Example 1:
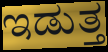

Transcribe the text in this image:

ಇಡುತ್ತ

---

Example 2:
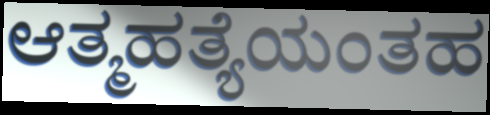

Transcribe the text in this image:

ಆತ್ಮಹತ್ಯೆಯಂತಹ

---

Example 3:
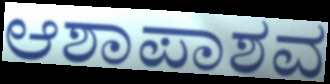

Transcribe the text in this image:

ಆಶಾಪಾಶವ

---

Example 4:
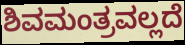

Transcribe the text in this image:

ಶಿವಮಂತ್ರವಲ್ಲದೆ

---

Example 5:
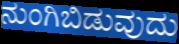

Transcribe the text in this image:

ನುಂಗಿಬಿಡುವುದು